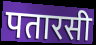
पतारसी